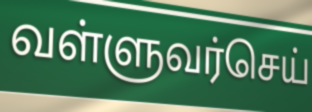
வள்ளுவர்செய்